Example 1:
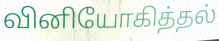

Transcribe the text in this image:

வினியோகித்தல்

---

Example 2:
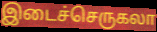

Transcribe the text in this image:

இடைச்செருகலா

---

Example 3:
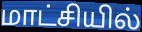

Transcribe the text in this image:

மாட்சியில்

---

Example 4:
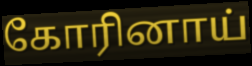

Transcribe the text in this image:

கோரினாய்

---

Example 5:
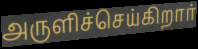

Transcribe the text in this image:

அருளிச்செய்கிறார்